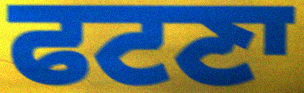
ਫਟਣਾ